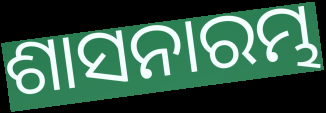
ଶାସନାରମ୍ଭ